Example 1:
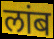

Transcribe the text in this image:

लांब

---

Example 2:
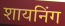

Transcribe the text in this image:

शायनिंग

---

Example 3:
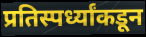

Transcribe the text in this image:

प्रतिस्पर्ध्यांकडून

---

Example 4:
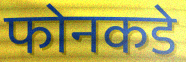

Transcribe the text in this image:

फोनकडे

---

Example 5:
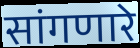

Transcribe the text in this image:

सांगणारे